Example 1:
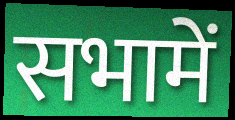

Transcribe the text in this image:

सभामें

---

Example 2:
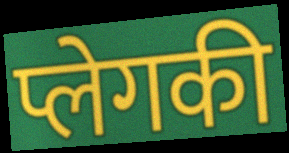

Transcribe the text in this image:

प्लेगकी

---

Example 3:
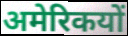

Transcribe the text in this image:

अमेरिकयों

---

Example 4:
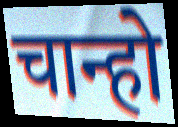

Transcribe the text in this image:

चान्हो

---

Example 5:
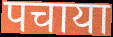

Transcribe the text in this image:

पचाया